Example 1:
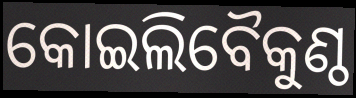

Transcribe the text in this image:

କୋଇଲିବୈକୁଣ୍ଠ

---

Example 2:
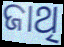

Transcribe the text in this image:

ଜାଥି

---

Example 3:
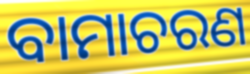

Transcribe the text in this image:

ବାମାଚରଣ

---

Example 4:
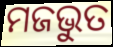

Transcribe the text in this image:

ମଜଭୁତ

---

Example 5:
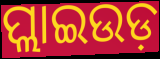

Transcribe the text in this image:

ପ୍ଲାଇଉଡ଼